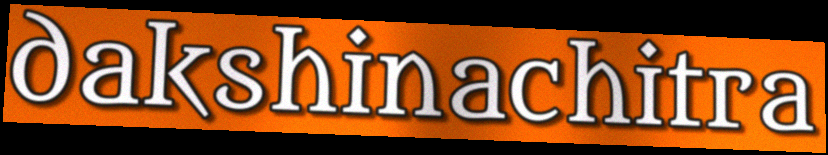
dakshinachitra